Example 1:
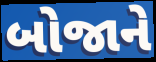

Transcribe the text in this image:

બોજાને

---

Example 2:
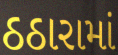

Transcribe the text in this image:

ઠઠારામાં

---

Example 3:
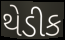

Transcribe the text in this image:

થેડીક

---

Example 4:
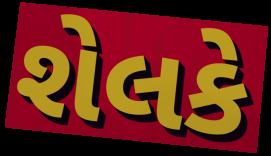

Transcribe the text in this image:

શેલકે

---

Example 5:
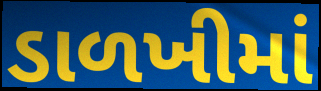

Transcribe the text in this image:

ડાળખીમાં